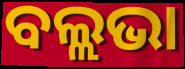
ବଲ୍ଲଭା